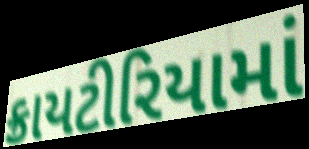
ક્રાયટીરિયામાં